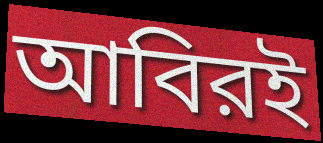
আবিরই